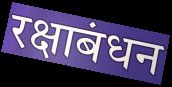
रक्षाबंधन